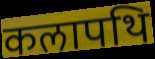
कलापथि